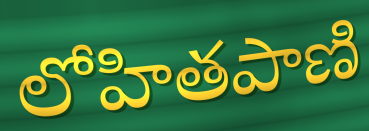
లోహితపాణి